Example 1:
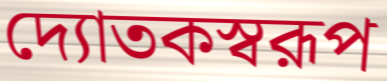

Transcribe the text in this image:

দ্যোতকস্বরূপ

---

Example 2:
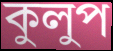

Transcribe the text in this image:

কুলুপ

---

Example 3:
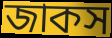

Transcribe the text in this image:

জাকস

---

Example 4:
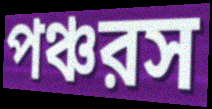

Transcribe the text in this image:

পঞ্চরস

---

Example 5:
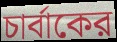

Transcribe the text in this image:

চার্বাকের